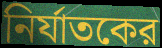
নির্যাতকের